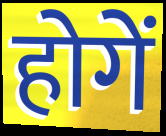
होगें